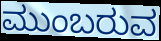
ಮುಂಬರುವ